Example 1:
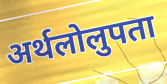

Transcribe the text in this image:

अर्थलोलुपता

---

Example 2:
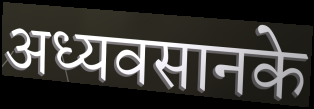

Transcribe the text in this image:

अध्यवसानके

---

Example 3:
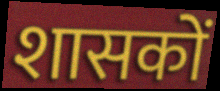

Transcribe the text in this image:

शासकों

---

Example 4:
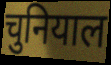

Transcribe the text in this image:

चुनियाल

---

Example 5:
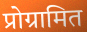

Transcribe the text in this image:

प्रोग्रामित